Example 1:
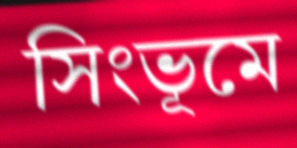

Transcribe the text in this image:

সিংভূমে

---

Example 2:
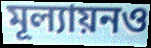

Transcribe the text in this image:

মূল্যায়নও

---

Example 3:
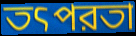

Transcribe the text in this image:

তৎপরতা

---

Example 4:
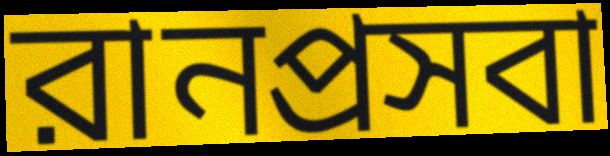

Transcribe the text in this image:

রানপ্রসবা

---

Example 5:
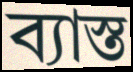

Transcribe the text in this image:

ব্যাস্ত